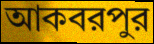
আকবরপুর